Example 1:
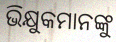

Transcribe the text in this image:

ଭିକ୍ଷୁକମାନଙ୍କୁ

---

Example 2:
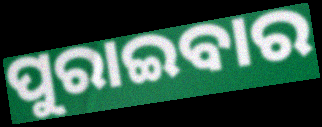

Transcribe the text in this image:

ପୁରାଇବାର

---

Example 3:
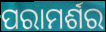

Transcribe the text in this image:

ପରାମର୍ଶର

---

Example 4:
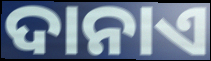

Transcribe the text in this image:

ଦାନାଏ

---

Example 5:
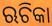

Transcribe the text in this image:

ଋଚିକା